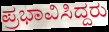
ಪ್ರಭಾವಿಸಿದ್ದರು